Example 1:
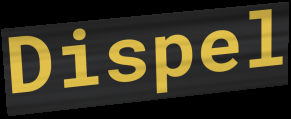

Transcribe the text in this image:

Dispel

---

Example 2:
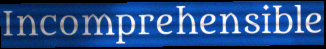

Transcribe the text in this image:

Incomprehensible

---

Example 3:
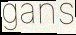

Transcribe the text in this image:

gans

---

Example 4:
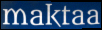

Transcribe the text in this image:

maktaa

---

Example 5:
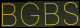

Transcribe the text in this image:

BGBS